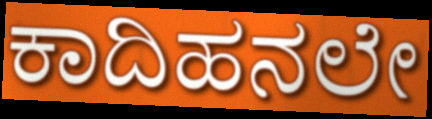
ಕಾದಿಹನಲೇ